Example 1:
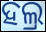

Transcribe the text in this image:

ହଲ୍ର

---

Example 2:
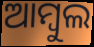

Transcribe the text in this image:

ଆମ୍ବୁଲ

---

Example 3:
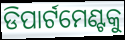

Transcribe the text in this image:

ଡିପାର୍ଟମେଣ୍ଟକୁ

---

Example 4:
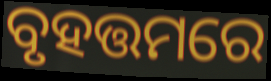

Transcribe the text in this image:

ବୃହତ୍ତମରେ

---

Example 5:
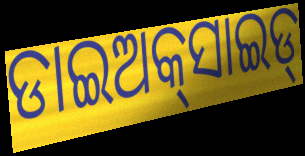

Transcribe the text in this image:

ଡାଇଅକ୍‌ସାଇଡ୍